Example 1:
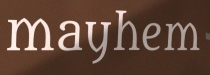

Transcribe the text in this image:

mayhem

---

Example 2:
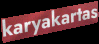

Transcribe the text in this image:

karyakartas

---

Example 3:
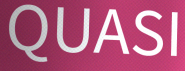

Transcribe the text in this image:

QUASI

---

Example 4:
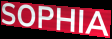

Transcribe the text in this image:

SOPHIA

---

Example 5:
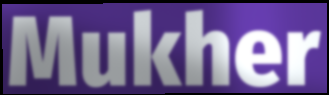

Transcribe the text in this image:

Mukher